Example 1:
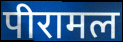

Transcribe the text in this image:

पीरामल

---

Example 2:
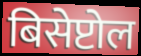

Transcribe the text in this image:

बिसेप्टोल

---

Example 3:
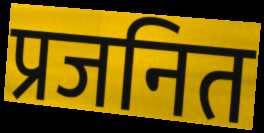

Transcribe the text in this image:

प्रजनित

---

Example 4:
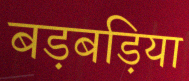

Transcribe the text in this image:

बड़बड़िया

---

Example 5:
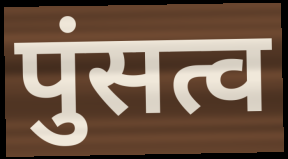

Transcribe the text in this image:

पुंसत्व